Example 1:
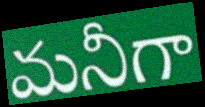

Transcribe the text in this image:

మనీగా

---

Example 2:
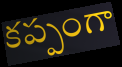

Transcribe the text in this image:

కప్పంగా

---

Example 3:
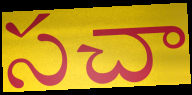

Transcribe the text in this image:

సచా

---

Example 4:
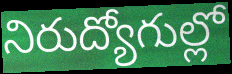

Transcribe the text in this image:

నిరుద్యోగుల్లో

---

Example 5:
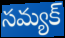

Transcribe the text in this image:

సమ్యక్